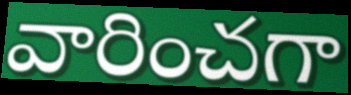
వారించగా